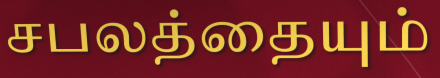
சபலத்தையும்